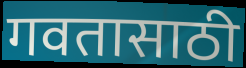
गवतासाठी